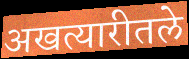
अखत्यारीतले